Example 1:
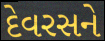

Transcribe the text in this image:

દેવરસને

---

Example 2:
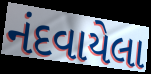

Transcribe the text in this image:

નંદવાયેલા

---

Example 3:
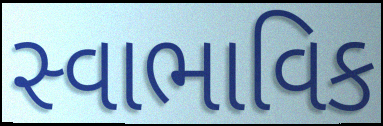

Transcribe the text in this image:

સ્વાભાવિક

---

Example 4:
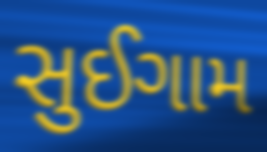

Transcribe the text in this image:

સુઈગામ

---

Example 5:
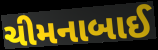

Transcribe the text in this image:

ચીમનાબાઈ